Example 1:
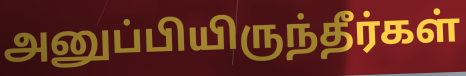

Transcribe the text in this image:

அனுப்பியிருந்தீர்கள்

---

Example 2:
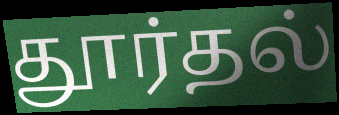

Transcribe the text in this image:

தூர்தல்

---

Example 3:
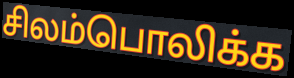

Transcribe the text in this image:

சிலம்பொலிக்க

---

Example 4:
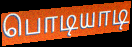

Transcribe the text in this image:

பொடியாடி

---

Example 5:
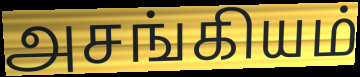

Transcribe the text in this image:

அசங்கியம்